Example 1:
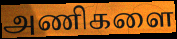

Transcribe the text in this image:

அணிகளை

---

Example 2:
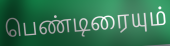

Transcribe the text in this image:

பெண்டிரையும்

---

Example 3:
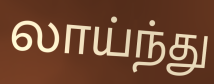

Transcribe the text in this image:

லாய்ந்து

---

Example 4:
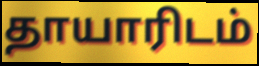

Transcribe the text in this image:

தாயாரிடம்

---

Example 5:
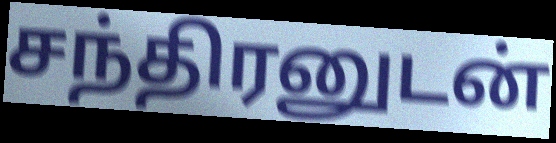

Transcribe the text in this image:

சந்திரனுடன்